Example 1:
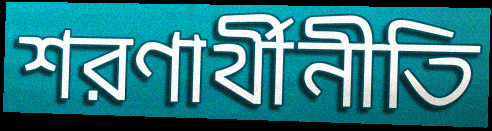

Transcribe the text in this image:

শরণার্থীনীতি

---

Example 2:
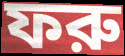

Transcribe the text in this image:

ফরু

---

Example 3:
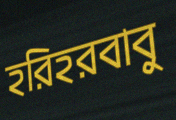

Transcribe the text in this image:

হরিহরবাবু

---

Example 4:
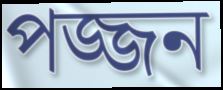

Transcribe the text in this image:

পজ্জন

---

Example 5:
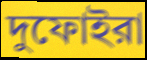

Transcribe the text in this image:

দুফোইরা